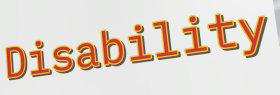
Disability